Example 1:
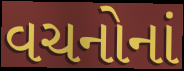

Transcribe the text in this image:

વચનોનાં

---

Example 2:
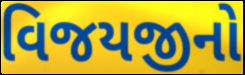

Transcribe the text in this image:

વિજયજીનો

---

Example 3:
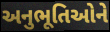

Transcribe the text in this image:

અનુભૂતિઓને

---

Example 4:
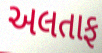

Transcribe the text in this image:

અલતાફ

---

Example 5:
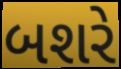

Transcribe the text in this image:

બશરે